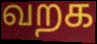
வறக